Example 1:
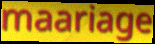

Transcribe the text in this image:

maariage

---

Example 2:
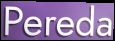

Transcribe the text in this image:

Pereda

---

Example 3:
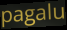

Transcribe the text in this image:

pagalu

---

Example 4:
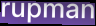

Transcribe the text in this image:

rupman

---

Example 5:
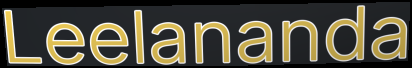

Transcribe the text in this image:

Leelananda